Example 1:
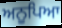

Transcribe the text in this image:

ਅਨੂਪਿਆ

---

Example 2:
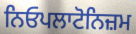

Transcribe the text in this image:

ਨਿਓਪਲਾਟੋਨਿਜ਼ਮ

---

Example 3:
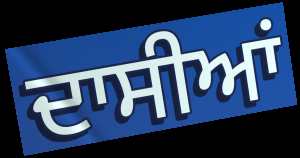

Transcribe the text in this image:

ਦਾਸੀਆਂ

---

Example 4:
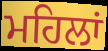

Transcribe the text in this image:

ਮਹਿਲਾਂ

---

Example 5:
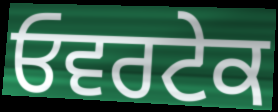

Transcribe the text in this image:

ਓਵਰਟੇਕ